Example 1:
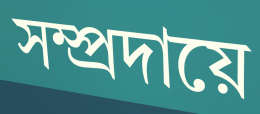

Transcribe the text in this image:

সম্প্ৰদায়ে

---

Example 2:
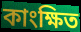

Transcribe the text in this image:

কাংক্ষিত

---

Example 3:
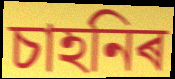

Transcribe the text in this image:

চাহনিৰ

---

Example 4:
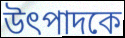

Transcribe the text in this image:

উৎপাদকে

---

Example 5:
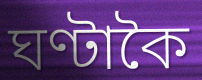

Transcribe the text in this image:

ঘণ্টাকৈ